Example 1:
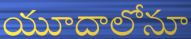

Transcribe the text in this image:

యూదాలోనూ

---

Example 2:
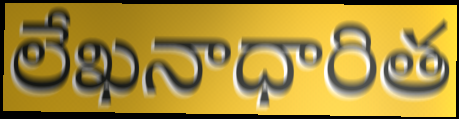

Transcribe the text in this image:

లేఖనాధారిత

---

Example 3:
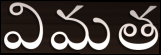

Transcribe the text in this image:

విమత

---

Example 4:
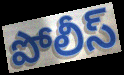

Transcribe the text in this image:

పోలీస్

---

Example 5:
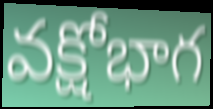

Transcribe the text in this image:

వక్షోభాగ